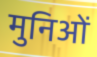
मुनिओं